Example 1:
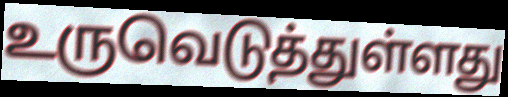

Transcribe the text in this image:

உருவெடுத்துள்ளது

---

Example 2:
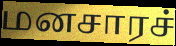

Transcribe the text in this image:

மனசாரச்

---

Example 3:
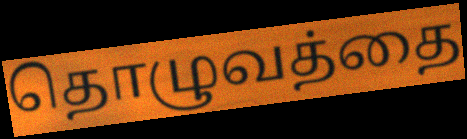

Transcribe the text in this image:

தொழுவத்தை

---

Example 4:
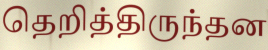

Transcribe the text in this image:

தெறித்திருந்தன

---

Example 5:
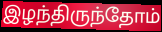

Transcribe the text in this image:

இழந்திருந்தோம்